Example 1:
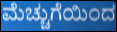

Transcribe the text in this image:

ಮೆಚ್ಚುಗೆಯಿಂದ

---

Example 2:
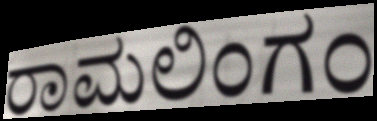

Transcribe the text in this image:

ರಾಮಲಿಂಗಂ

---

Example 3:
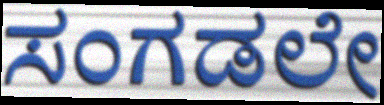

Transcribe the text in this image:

ಸಂಗಡಲೇ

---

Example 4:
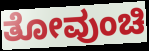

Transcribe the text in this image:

ತೋವುಂಚಿ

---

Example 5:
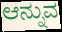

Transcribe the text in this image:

ಆನ್ನುವ